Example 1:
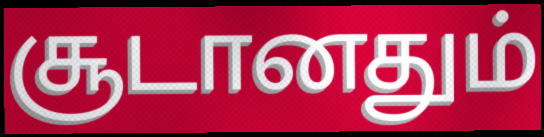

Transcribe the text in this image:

சூடானதும்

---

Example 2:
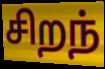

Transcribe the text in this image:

சிறந்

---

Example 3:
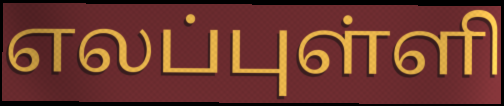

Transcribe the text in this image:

எலப்புள்ளி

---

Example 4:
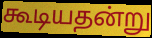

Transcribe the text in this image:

கூடியதன்று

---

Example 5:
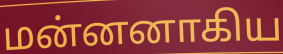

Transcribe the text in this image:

மன்னனாகிய